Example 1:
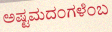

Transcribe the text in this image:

ಅಷ್ಟಮದಂಗಳೆಂಬ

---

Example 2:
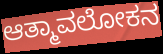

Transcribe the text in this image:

ಆತ್ಮಾವಲೋಕನ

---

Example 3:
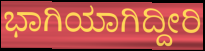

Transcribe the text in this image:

ಭಾಗಿಯಾಗಿದ್ದೀರಿ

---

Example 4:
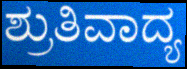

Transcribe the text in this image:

ಶ್ರುತಿವಾದ್ಯ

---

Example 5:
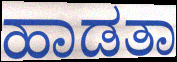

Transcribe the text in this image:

ಹಾಡತಾ